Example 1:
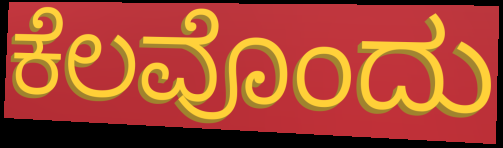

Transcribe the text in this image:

ಕೆಲವೊಂದು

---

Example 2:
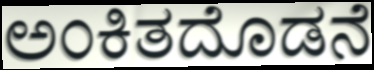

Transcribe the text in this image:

ಅಂಕಿತದೊಡನೆ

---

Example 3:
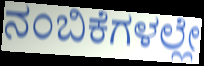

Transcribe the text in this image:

ನಂಬಿಕೆಗಳಲ್ಲೇ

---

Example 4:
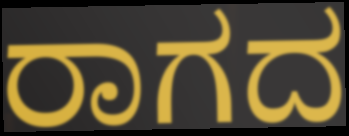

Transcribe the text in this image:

ರಾಗದ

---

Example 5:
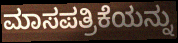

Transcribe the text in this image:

ಮಾಸಪತ್ರಿಕೆಯನ್ನು